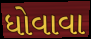
ધોવાવા